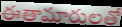
ఈతామారులతో